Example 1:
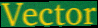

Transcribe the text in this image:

Vector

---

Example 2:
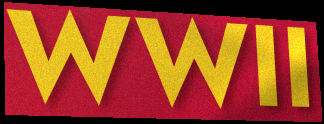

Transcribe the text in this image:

WWII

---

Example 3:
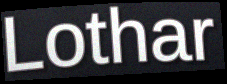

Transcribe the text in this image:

Lothar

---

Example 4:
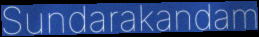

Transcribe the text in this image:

Sundarakandam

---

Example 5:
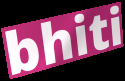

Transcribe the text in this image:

bhiti